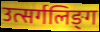
उत्सर्गलिङ्ग